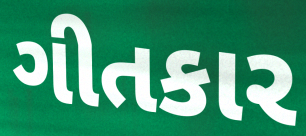
ગીતકાર